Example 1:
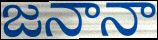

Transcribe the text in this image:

జనానా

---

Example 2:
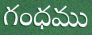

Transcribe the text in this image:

గంధము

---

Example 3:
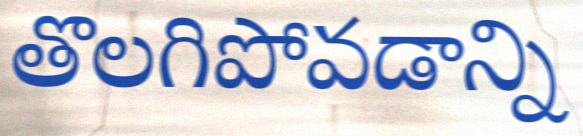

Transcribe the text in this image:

తొలగిపోవడాన్ని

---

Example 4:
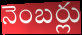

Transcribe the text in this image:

నెంబర్లు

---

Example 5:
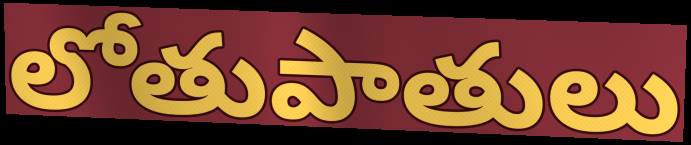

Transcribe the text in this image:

లోతుపాతులు